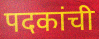
पदकांची